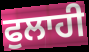
ਫੁਲਾਹੀ